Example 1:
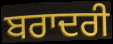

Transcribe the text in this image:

ਬਰਾਦਰੀ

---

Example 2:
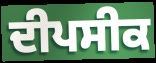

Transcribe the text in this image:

ਦੀਪਸੀਕ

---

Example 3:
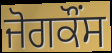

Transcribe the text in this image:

ਜੋਗਕੌਂਸ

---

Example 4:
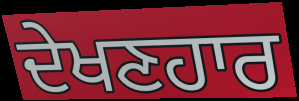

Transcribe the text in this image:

ਦੇਖਣਹਾਰ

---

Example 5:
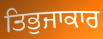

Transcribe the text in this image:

ਤਿਭੁਜਾਕਾਰ